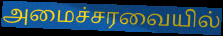
அமைச்சரவையில்